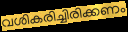
വശികരിച്ചിരിക്കണം